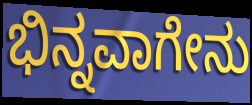
ಭಿನ್ನವಾಗೇನು